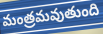
మంత్రమవుతుంది